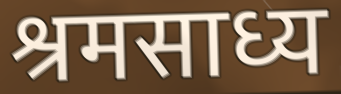
श्रमसाध्य